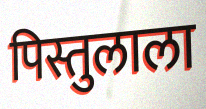
पिस्तुलाला